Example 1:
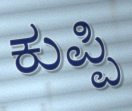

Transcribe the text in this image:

ಕುಪ್ಪಿ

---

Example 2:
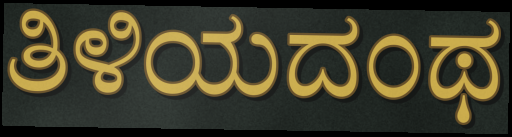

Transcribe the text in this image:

ತಿಳಿಯದಂಥ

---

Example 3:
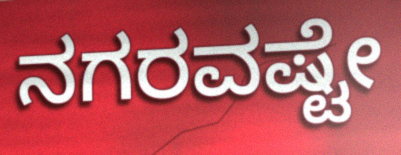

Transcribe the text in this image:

ನಗರವಷ್ಟೇ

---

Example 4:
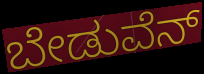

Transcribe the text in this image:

ಬೇಡುವೆನ್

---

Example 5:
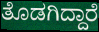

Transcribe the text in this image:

ತೊಡಗಿದ್ದಾರೆ